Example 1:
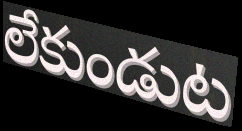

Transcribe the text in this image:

లేకుండుట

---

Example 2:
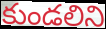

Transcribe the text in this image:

కుండలిని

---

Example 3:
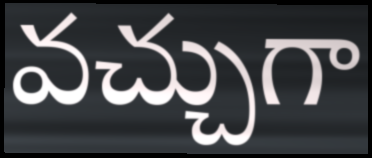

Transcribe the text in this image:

వచ్చుగా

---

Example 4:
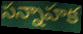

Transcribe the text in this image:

సన్నాహక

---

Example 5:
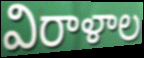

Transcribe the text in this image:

విరాళాల